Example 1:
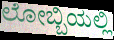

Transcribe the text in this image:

ಲೋಬ್ಬಿಯಲ್ಲಿ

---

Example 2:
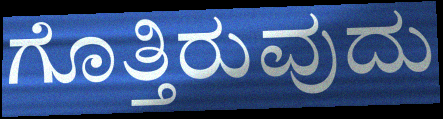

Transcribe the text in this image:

ಗೊತ್ತಿರುವುದು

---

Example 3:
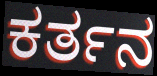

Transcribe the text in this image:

ಕರ್ತನ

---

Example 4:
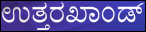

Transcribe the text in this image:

ಉತ್ತರಖಾಂಡ್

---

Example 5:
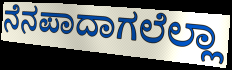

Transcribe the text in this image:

ನೆನಪಾದಾಗಲೆಲ್ಲಾ